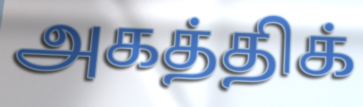
அகத்திக்